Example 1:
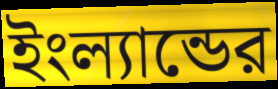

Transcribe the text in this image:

ইংল্যান্ডের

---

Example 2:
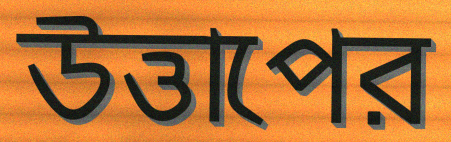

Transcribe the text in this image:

উত্তাপের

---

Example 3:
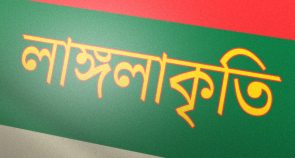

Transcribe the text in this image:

লাঙ্গলাকৃতি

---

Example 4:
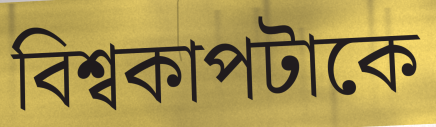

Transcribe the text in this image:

বিশ্বকাপটাকে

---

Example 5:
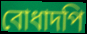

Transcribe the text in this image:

বোধাদপি